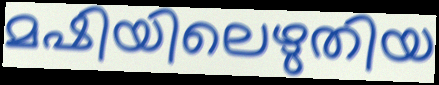
മഷിയിലെഴുതിയ